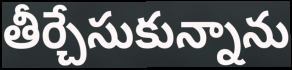
తీర్చేసుకున్నాను